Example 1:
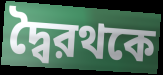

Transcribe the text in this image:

দ্বৈরথকে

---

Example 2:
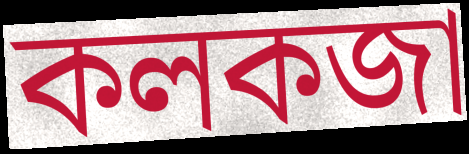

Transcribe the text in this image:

কলকজা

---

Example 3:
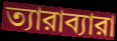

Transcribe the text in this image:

ত্যারাব্যারা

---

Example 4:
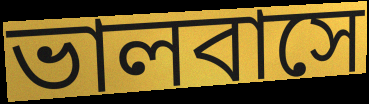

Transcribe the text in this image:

ভালবাসে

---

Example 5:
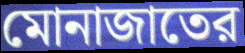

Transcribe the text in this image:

মোনাজাতের